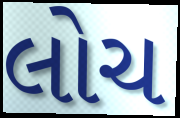
લોચ